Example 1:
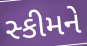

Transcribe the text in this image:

સ્કીમને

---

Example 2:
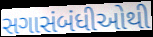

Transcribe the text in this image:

સગાસંબંધીઓથી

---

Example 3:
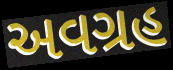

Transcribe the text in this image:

અવગ્રહ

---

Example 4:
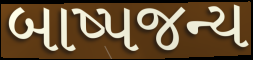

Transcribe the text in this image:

બાષ્પજન્ય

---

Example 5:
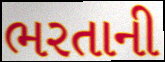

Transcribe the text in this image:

ભરતાની